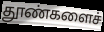
தூண்களைச்